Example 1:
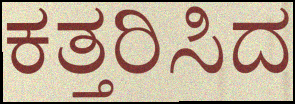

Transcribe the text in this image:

ಕತ್ತರಿಸಿದ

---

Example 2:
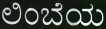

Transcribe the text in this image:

ಲಿಂಬೆಯ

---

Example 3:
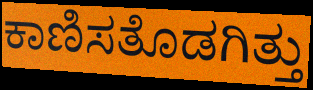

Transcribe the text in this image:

ಕಾಣಿಸತೊಡಗಿತ್ತು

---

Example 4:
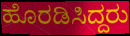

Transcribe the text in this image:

ಹೊರಡಿಸಿದ್ದರು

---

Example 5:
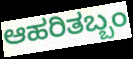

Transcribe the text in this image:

ಆಹರಿತಬ್ಬಂ